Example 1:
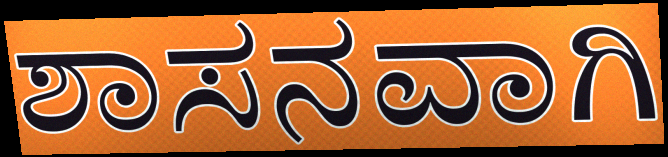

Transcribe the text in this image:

ಶಾಸನವಾಗಿ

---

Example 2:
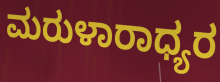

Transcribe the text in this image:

ಮರುಳಾರಾಧ್ಯರ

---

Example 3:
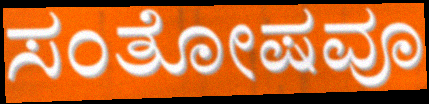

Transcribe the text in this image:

ಸಂತೋಷವೂ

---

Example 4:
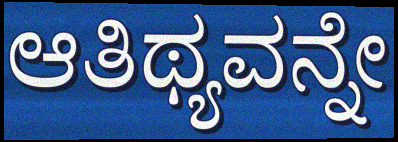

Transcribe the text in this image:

ಆತಿಥ್ಯವನ್ನೇ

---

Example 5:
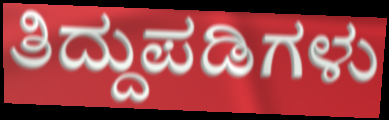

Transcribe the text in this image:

ತಿದ್ದುಪಡಿಗಳು